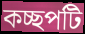
কচ্ছপটি